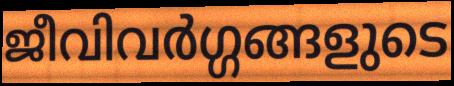
ജീവിവർഗ്ഗങ്ങളുടെ